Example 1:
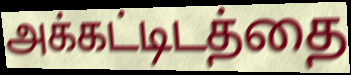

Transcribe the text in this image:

அக்கட்டிடத்தை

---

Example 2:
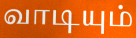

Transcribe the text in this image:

வாடியும்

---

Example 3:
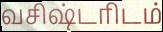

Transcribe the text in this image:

வசிஷ்டரிடம்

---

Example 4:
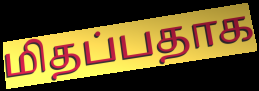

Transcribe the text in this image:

மிதப்பதாக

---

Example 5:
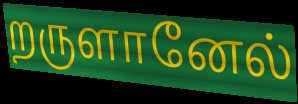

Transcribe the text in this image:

றருளானேல்